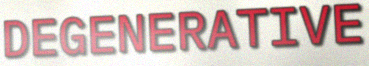
DEGENERATIVE